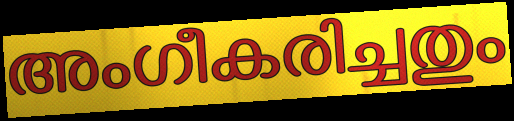
അംഗീകരിച്ചതും